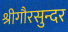
श्रीगौरसुन्दर